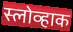
स्लोव्हाक